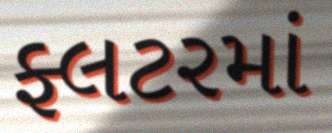
ફ્લટરમાં